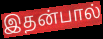
இதன்பால்